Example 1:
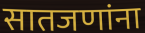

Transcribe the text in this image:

सातजणांना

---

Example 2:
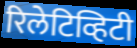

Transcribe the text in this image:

रिलेटिव्हिटी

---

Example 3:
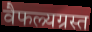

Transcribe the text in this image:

वैफल्यग्रस्त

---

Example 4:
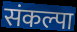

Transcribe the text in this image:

संकल्पा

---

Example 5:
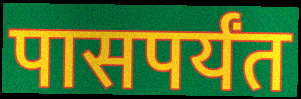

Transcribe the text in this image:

पासपर्यंत